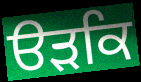
ੳੜਕਿ